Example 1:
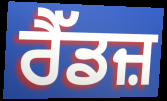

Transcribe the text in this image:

ਰੈੱਡਜ਼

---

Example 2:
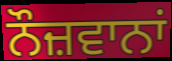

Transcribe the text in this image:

ਨੌਜ਼ਵਾਨਾਂ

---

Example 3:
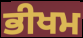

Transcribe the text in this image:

ਭੀਖਮ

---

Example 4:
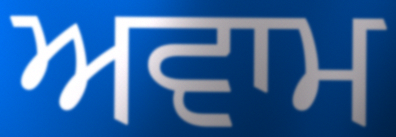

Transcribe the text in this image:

ਅਵਾਮ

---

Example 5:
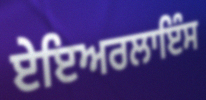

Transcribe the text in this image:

ਏਇਅਰਲਾਇੰਸ